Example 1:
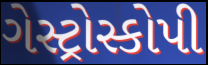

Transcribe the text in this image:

ગેસ્ટ્રોસ્કોપી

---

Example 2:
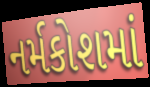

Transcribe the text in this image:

નર્મકોશમાં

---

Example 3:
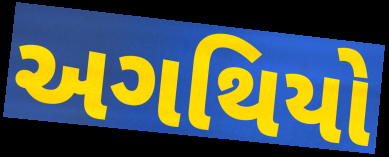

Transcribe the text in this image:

અગથિયો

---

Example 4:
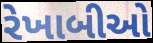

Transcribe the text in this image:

રેખાબીઓ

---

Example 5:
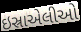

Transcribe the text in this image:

ઇસ્રાએલીઓ